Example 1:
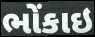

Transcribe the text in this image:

ભોંકાઇ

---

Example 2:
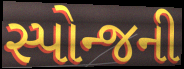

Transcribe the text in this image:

સ્પોન્જની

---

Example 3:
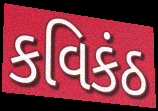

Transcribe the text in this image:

કવિકંઠ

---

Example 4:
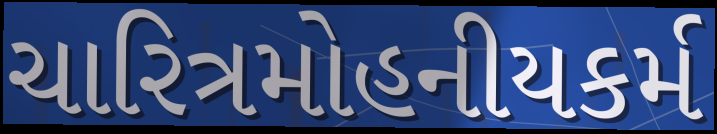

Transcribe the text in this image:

ચારિત્રમોહનીયકર્મ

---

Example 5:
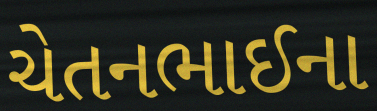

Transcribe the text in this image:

ચેતનભાઈના